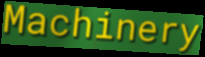
Machinery